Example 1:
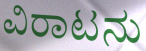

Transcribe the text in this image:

ವಿರಾಟನು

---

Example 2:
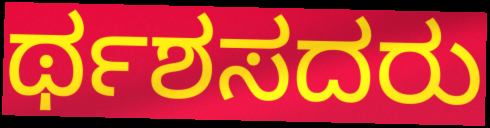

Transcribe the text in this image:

ರ್ಥಶಸದರು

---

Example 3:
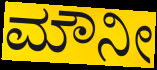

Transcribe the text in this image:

ಮೌನೀ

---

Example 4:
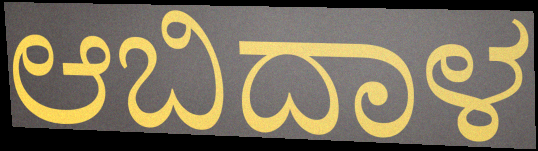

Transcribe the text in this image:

ಆಬಿದಾಳ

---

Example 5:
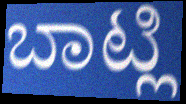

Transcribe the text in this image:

ಬಾಟ್ಲಿ